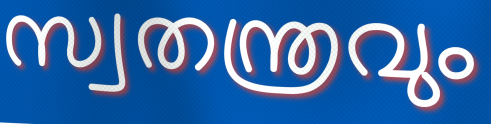
സ്വതന്ത്രവും